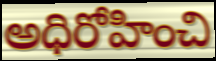
అధిరోహించి